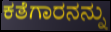
ಕತೆಗಾರನನ್ನು